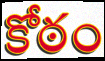
కోఠం